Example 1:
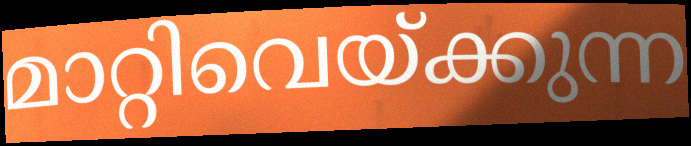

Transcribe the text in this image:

മാറ്റിവെയ്ക്കുന്ന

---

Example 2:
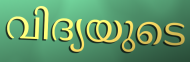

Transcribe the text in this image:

വിദ്യയുടെ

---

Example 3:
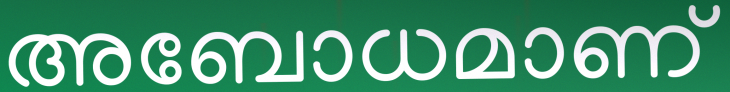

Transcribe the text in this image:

അബോധമാണ്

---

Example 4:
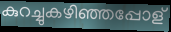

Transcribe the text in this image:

കുറച്ചുകഴിഞ്ഞപ്പോള്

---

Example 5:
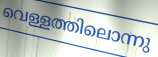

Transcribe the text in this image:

വെള്ളത്തിലൊന്നു